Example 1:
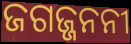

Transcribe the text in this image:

ଜଗଜ୍ଜନନୀ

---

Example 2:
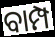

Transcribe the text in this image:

ବାମ୍ପ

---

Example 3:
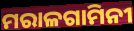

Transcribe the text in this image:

ମରାଳଗାମିନୀ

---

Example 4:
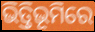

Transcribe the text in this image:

ଭିତ୍ତିଭୂମିରେ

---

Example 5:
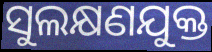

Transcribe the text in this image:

ସୁଲକ୍ଷଣଯୁକ୍ତ